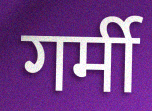
गर्मी